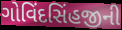
ગોવિંદસિંહજીની